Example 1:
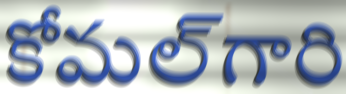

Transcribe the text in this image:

కోమల్‌గారి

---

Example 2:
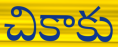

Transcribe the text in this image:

చికాకు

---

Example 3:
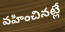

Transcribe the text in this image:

వహించినట్లే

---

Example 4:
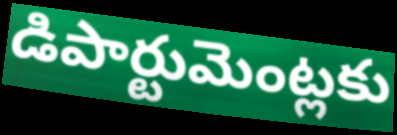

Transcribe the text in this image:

డిపార్టుమెంట్లకు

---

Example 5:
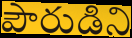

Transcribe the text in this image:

పౌరుడిని